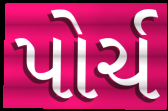
પોર્ચ